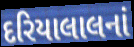
દરિયાલાલનાં